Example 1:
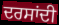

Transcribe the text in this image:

ਦਰਸਾਂਦੀ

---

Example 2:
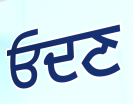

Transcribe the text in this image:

ਓਦਣ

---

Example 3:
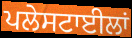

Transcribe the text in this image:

ਪਲੇਸਟਾਈਲਾਂ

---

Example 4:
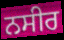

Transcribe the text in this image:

ਨਸੀਰ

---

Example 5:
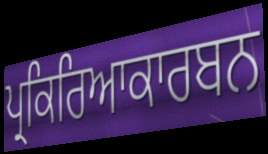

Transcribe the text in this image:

ਪ੍ਰਕਿਰਿਆਕਾਰਬਨ